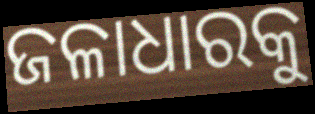
ଜଳାଧାରକୁ